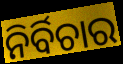
ନିର୍ବିଚାର